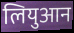
लियुआन